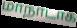
மாநாடாக